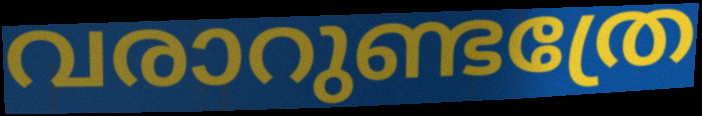
വരാറുണ്ടത്രേ